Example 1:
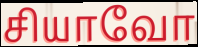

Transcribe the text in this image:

சியாவோ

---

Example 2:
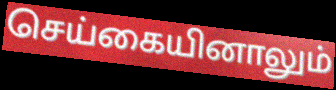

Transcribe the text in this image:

செய்கையினாலும்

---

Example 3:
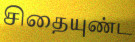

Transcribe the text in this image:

சிதையுண்ட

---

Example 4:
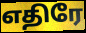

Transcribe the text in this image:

எதிரே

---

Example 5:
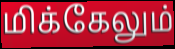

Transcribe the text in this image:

மிக்கேலும்